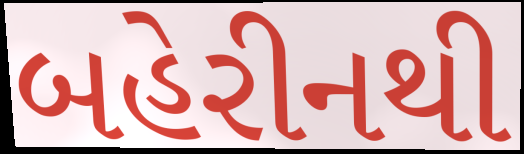
બહેરીનથી